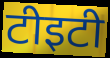
टीइटी